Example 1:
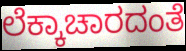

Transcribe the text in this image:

ಲೆಕ್ಕಾಚಾರದಂತೆ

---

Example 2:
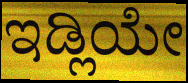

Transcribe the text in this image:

ಇಡ್ಲಿಯೇ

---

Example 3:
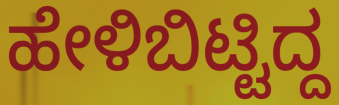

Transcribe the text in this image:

ಹೇಳಿಬಿಟ್ಟಿದ್ದ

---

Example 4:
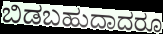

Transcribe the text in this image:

ಬಿಡಬಹುದಾದರೂ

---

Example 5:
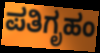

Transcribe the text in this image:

ಪತಿಗೃಹಂ